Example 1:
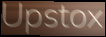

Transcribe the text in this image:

Upstox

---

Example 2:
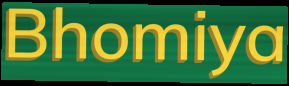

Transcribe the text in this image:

Bhomiya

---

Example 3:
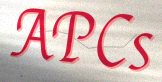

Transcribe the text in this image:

APCs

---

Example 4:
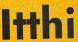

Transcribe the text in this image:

Itthi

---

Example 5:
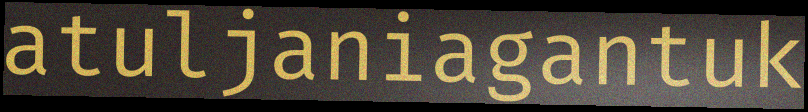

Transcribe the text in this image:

atuljaniagantuk